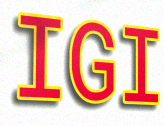
IGI